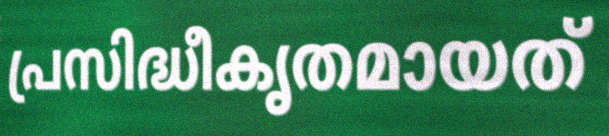
പ്രസിദ്ധീകൃതമായത്